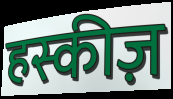
हस्कीज़